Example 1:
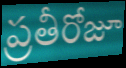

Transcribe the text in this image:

ప్రతీరోజూ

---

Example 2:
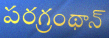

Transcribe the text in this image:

పరగ్రంథాన్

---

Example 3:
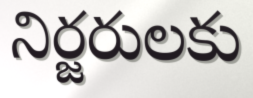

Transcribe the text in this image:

నిర్జరులకు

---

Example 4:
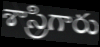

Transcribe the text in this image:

శాస్రిగారు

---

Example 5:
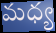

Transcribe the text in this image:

మధ్య